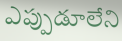
ఎప్పుడూలేని